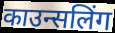
काउन्सलिंग